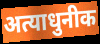
अत्याधुनीक